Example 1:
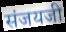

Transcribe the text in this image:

संजयजी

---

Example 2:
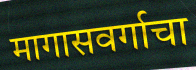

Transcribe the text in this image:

मागासवर्गाचा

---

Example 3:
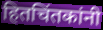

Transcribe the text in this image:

हितचिंतकांनी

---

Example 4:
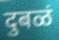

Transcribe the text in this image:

दुबळं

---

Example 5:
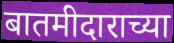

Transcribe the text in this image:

बातमीदाराच्या